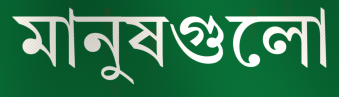
মানুষগুলো